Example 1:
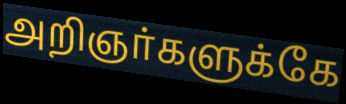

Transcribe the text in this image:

அறிஞர்களுக்கே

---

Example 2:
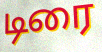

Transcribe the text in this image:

டிரை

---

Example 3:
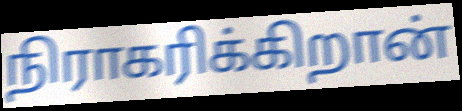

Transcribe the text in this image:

நிராகரிக்கிறான்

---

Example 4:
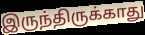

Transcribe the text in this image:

இருந்திருக்காது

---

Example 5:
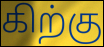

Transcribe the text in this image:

கிற்கு